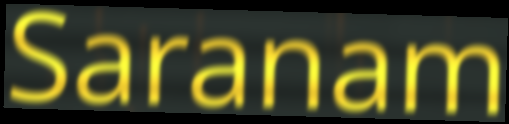
Saranam